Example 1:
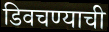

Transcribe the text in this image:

डिवचण्याची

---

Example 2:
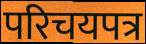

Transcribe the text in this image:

परिचयपत्र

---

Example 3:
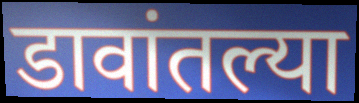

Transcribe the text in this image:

डावांतल्या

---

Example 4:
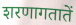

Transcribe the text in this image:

शरणागतातें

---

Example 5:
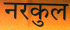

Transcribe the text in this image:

नरकुल